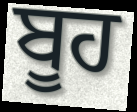
ਬੂਹ